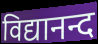
विद्यानन्द